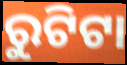
ରୁଟିଟା